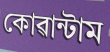
কোৱান্টাম